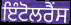
ਇੰਟੋਲਰੈਂਸ